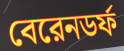
বেরেনডর্ফ